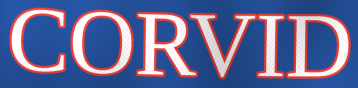
CORVID